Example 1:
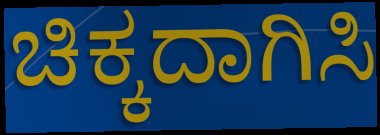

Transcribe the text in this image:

ಚಿಕ್ಕದಾಗಿಸಿ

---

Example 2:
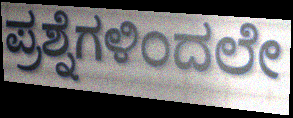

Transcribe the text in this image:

ಪ್ರಶ್ನೆಗಳಿಂದಲೇ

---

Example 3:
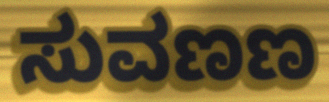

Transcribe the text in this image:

ಸುವಣಣ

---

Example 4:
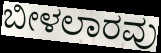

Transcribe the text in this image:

ಬೀಳಲಾರವು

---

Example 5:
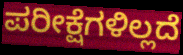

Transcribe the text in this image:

ಪರೀಕ್ಷೆಗಳಿಲ್ಲದೆ